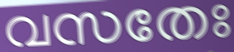
വസതേഃ